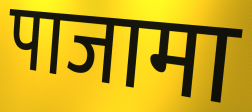
पाजामा